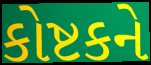
કોષ્ટકને